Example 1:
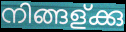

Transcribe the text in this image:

നിങ്ങള്ക്കു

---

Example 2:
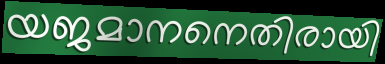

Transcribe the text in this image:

യജമാനനെതിരായി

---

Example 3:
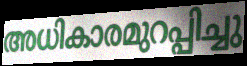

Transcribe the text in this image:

അധികാരമുറപ്പിച്ചു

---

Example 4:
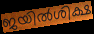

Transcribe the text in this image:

ജയിൽശിക്ഷ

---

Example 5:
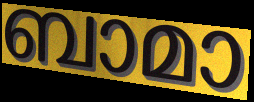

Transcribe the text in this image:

ബാമാ